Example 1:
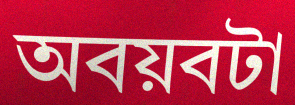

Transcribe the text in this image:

অবয়বটা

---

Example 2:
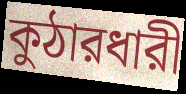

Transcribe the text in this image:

কুঠারধারী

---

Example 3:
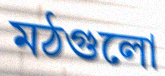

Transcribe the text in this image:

মঠগুলো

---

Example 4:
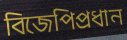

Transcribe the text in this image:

বিজেপিপ্রধান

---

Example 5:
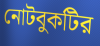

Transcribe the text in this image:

নোটবুকটির